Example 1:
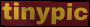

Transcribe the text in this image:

tinypic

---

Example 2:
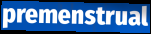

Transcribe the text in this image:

premenstrual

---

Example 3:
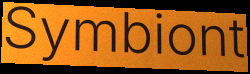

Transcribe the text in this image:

Symbiont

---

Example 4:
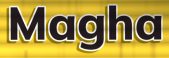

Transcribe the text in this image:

Magha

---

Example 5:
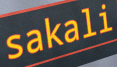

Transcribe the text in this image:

sakali